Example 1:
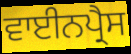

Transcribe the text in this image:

ਵਾਈਨਪ੍ਰੈਸ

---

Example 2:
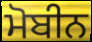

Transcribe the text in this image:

ਮੋਬੀਨ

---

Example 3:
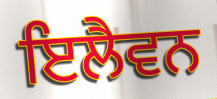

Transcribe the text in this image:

ਇਲੈਵਨ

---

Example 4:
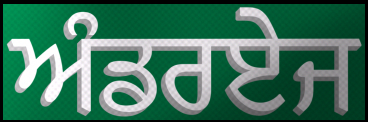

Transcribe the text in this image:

ਅੰਡਰਏਜ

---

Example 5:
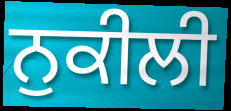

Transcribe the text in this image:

ਨੁਕੀਲੀ